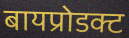
बायप्रोडक्ट